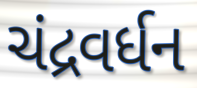
ચંદ્રવર્ધન